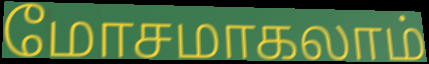
மோசமாகலாம்